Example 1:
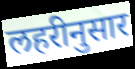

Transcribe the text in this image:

लहरीनुसार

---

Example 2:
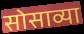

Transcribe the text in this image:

सोसाव्या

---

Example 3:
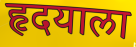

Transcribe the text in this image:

हृदयाला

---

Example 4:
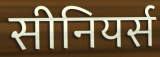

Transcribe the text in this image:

सीनियर्स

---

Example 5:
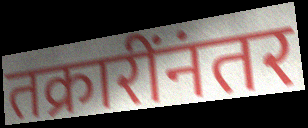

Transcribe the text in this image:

तक्रारींनंतर